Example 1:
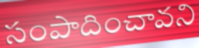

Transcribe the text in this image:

సంపాదించావని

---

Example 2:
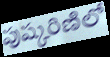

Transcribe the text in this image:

పుష్కరిణిలో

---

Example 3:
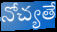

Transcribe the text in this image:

నోచ్యతే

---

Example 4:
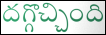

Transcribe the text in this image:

దగ్గొచ్చింది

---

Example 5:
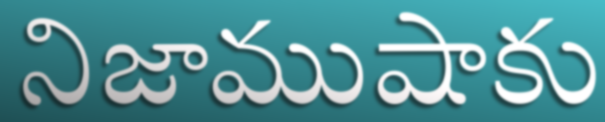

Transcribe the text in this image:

నిజాముషాకు